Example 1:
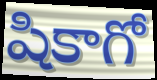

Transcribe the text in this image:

షికాగో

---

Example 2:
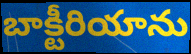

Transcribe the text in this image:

బాక్టీరియాను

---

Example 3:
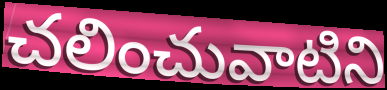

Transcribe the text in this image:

చలించువాటిని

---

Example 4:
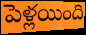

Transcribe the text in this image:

పెళ్లయింది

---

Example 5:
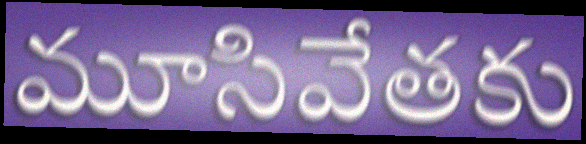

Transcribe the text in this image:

మూసివేతకు